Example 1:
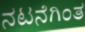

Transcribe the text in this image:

ನಟನೆಗಿಂತ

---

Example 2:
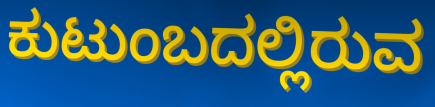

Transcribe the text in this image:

ಕುಟುಂಬದಲ್ಲಿರುವ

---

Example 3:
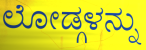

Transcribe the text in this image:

ಲೋಡ್ಗಳನ್ನು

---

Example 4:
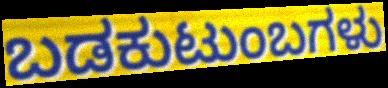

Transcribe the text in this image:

ಬಡಕುಟುಂಬಗಳು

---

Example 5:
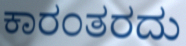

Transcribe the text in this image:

ಕಾರಂತರದು